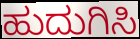
ಹುದುಗಿಸಿ